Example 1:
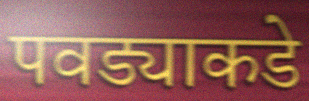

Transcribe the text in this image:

पवड्याकडे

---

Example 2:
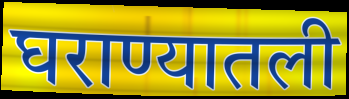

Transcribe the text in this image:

घराण्यातली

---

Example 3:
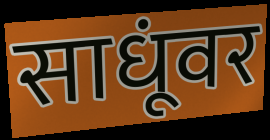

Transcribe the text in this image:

साधूंवर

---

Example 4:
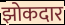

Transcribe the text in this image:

झोकदार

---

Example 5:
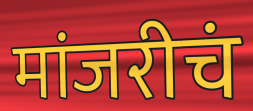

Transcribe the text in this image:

मांजरीचं